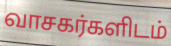
வாசகர்களிடம்